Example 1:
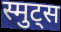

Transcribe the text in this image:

स्मुट्स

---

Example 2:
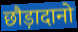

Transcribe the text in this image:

छौड़ादानो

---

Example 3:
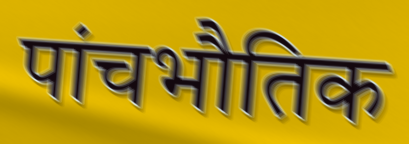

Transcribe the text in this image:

पांचभौतिक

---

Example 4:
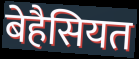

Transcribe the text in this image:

बेहैसियत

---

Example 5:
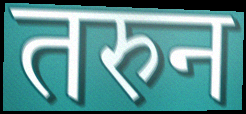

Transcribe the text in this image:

तरुन